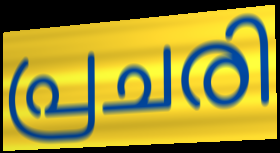
പ്രചരി